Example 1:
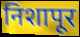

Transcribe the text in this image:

निशापूर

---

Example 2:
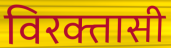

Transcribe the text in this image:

विरक्तासी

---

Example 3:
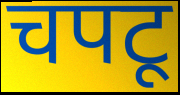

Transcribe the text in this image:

चपटू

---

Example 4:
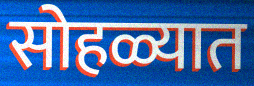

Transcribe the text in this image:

सोहळ्यात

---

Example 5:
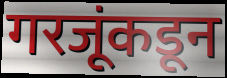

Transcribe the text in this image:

गरजूंकडून